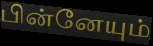
பின்னேயும்